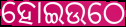
ହୋଇଉଠେ